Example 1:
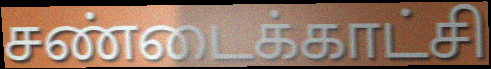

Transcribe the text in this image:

சண்டைக்காட்சி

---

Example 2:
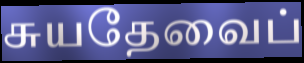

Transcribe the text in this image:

சுயதேவைப்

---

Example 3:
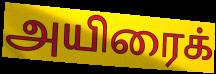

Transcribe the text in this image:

அயிரைக்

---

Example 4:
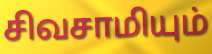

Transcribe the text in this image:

சிவசாமியும்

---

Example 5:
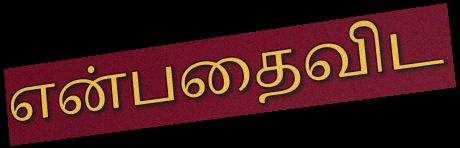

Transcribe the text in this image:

என்பதைவிட